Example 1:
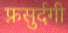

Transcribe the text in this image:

फ़सुर्दगी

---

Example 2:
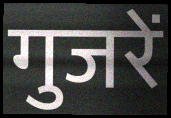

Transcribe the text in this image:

गुजरें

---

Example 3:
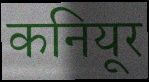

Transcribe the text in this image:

कनियूर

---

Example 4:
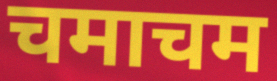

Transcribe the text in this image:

चमाचम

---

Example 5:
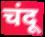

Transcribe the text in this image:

चंदू